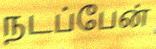
நடப்பேன்